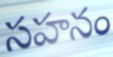
సహనం